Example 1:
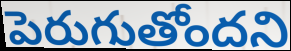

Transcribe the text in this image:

పెరుగుతోందని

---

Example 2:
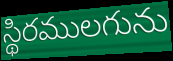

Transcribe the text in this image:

స్థిరములగును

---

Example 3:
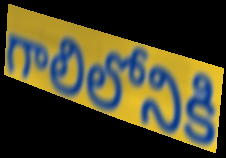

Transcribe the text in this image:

గాలిలోనికి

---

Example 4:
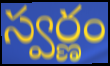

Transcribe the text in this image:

స్వర్ణం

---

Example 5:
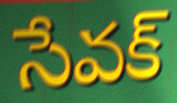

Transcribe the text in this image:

సేవక్